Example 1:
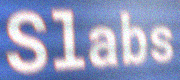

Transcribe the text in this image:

Slabs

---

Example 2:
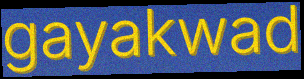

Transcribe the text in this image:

gayakwad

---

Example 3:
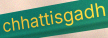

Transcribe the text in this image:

chhattisgadh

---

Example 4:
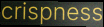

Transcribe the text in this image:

crispness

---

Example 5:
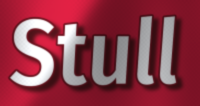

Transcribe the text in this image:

Stull